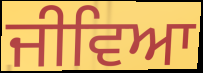
ਜੀਵਿਆ